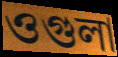
ওগুলা